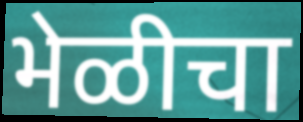
भेळीचा